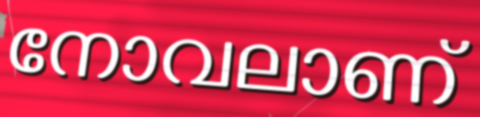
നോവലാണ്